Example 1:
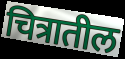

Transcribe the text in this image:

चित्रातील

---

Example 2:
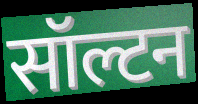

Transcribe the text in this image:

सॉल्टन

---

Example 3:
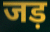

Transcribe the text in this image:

जड़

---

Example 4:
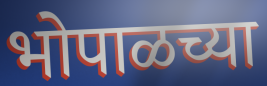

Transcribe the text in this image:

भोपाळच्या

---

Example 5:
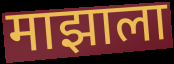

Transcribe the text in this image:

माझाला